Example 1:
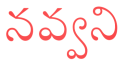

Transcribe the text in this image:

నవ్వని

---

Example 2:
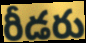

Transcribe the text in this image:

రీడరు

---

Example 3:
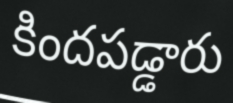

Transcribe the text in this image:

కిందపడ్డారు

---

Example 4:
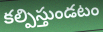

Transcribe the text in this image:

కల్పిస్తుండటం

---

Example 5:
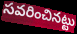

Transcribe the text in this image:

సవరించినట్టు